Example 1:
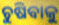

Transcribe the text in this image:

ଚୁଷିବାକୁ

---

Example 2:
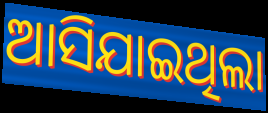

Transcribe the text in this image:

ଆସିଯାଇଥିଲା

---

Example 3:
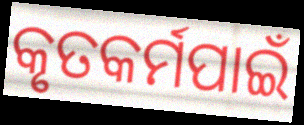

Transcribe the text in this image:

କୃତକର୍ମପାଇଁ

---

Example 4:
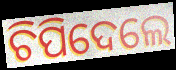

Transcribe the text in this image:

ଚିପିଦେଲେ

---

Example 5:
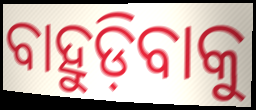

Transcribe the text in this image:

ବାହୁଡ଼ିବାକୁ